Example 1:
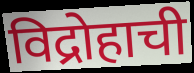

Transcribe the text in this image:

विद्रोहाची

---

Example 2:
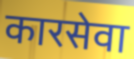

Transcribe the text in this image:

कारसेवा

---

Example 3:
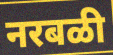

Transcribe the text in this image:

नरबळी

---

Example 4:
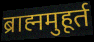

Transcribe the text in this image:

ब्राह्ममुहूर्त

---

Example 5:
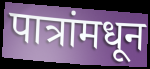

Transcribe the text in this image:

पात्रांमधून